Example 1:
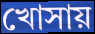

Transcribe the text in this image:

খোসায়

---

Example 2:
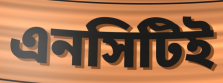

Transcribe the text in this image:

এনসিটিই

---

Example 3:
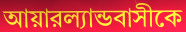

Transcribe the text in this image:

আয়ারল্যান্ডবাসীকে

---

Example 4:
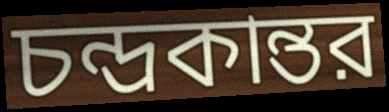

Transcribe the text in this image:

চন্দ্রকান্তর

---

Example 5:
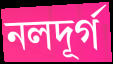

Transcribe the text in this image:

নলদূর্গ